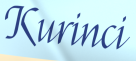
Kurinci